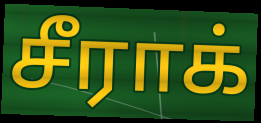
சீராக்